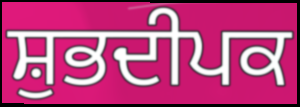
ਸ਼ੁਭਦੀਪਕ